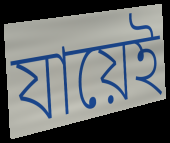
যায়েই